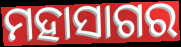
ମହାସାଗର